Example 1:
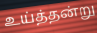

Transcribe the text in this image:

உய்த்தன்று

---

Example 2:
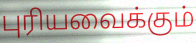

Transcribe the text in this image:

புரியவைக்கும்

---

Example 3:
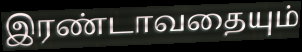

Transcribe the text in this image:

இரண்டாவதையும்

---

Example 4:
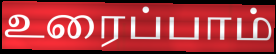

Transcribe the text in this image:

உரைப்பாம்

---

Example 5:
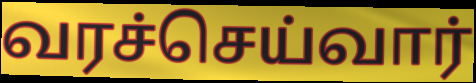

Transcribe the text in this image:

வரச்செய்வார்